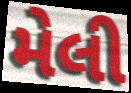
મેલી